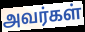
அவர்கள்